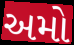
અમો